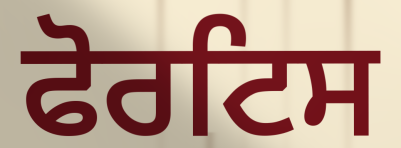
ਫੋਰਟਿਸ